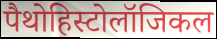
पैथोहिस्टोलॉजिकल